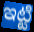
ఇట్టి